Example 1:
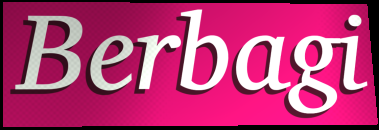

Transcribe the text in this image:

Berbagi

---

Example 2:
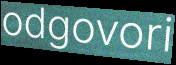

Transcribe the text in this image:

odgovori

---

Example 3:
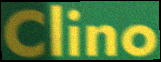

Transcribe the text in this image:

Clino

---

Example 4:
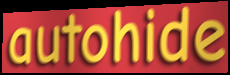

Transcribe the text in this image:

autohide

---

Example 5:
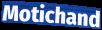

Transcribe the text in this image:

Motichand